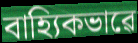
বাহ্যিকভাৱে